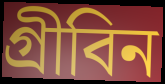
গ্রীবিন